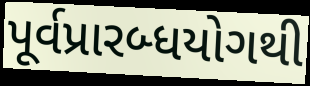
પૂર્વપ્રારબ્ધયોગથી